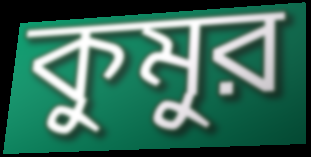
কুমুর